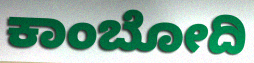
ಕಾಂಬೋದಿ